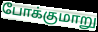
போக்குமாறு